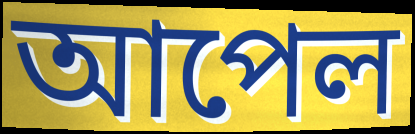
আপেল